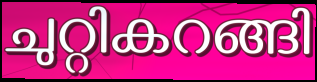
ചുറ്റികറങ്ങി